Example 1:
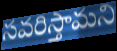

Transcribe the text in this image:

సవరిస్తామని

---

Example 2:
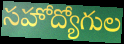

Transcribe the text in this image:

సహోద్యోగుల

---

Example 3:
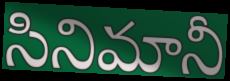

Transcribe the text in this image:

సినిమానీ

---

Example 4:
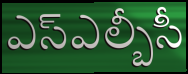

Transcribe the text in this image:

ఎస్ఎల్బీసీ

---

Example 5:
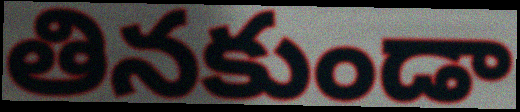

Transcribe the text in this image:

తినకుండా